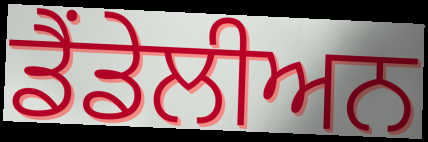
ਡੈਂਡੇਲੀਅਨ